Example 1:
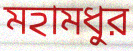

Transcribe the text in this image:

মহামধুর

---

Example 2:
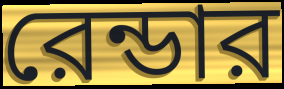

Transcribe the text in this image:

রেন্ডার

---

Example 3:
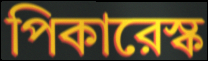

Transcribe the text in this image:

পিকারেস্ক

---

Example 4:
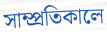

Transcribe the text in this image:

সাম্প্রতিকালে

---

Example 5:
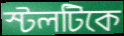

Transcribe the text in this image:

স্টলটিকে